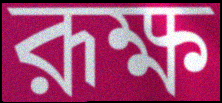
রূক্ষ